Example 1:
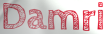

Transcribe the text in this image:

Damri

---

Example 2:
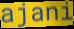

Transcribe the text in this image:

ajani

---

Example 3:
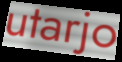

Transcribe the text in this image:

utarjo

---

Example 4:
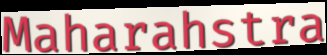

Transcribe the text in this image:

Maharahstra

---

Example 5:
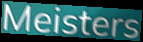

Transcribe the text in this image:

Meisters